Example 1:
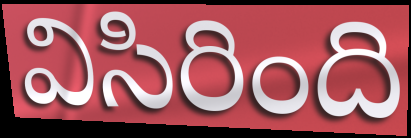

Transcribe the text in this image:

విసిరింది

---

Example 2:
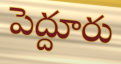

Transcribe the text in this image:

పెద్దూరు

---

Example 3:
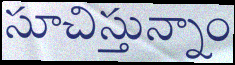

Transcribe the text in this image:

సూచిస్తున్నాం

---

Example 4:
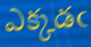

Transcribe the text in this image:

ఎక్కడఁ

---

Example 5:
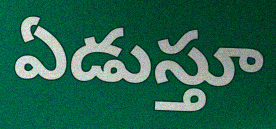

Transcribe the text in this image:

ఏడుస్తూ